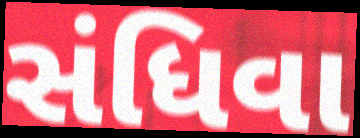
સંધિવા